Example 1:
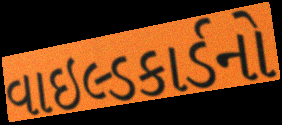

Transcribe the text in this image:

વાઇલ્ડકાર્ડનો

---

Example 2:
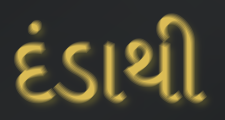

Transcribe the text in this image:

દંડાથી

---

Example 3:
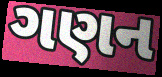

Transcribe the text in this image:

ગણન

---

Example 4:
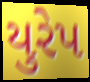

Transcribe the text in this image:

યુરેપ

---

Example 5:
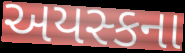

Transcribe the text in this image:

અયસ્કના